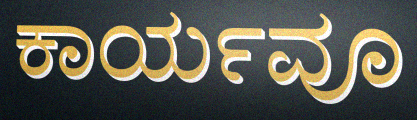
ಕಾರ್ಯವೂ